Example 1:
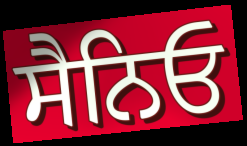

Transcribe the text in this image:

ਸੈਨਿਓ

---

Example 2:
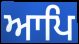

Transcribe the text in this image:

ਆਪਿ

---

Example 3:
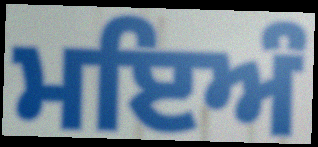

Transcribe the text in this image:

ਮਇਅੰ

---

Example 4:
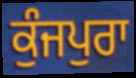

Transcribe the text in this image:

ਕੁੰਜਪੁਰਾ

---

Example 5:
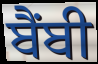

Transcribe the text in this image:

ਬੈਂਬੀ